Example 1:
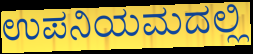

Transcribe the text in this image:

ಉಪನಿಯಮದಲ್ಲಿ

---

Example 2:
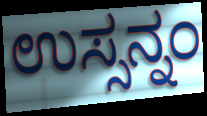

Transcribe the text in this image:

ಉಸ್ಸನ್ನಂ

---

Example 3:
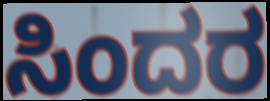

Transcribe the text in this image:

ಸಿಂದರ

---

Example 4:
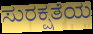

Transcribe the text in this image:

ಸುರಕ್ಷತೆಯ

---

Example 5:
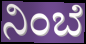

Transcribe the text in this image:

ನಿಂಬೆ